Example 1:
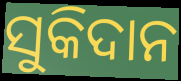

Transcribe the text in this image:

ସୁକିଦାନ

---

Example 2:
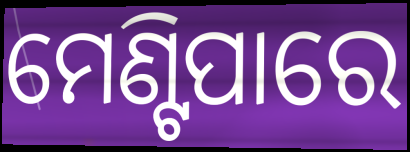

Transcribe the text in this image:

ମେଣ୍ଟିପାରେ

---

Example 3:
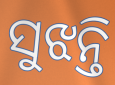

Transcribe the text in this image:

ସୁଝନ୍ତି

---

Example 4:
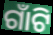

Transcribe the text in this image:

ଗାଁଟି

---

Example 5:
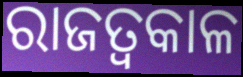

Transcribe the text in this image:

ରାଜତ୍ଵକାଳ